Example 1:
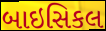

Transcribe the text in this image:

બાઇસિકલ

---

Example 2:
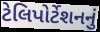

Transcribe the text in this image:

ટેલિપોર્ટેશનનું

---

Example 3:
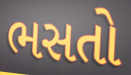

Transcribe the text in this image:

ભસતો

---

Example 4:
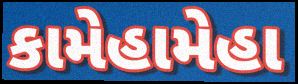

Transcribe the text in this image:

કામેહામેહા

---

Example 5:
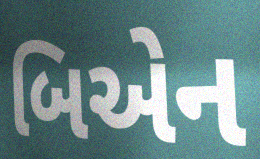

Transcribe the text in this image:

બિએન